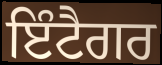
ਇੰਟੈਗਰ